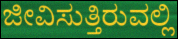
ಜೀವಿಸುತ್ತಿರುವಲ್ಲಿ